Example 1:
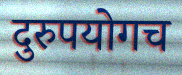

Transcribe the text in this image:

दुरुपयोगच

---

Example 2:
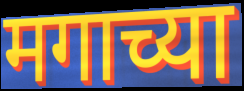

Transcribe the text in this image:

मगाच्या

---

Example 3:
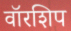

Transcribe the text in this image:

वॉरशिप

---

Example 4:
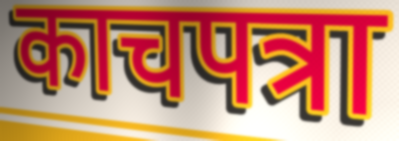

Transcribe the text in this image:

काचपत्रा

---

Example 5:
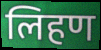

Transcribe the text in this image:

लिहण